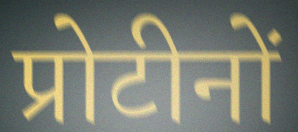
प्रोटीनों